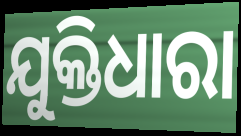
ଯୁକ୍ତିଧାରା